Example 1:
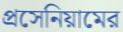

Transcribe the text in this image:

প্রসেনিয়ামের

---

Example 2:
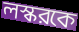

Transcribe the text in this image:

লস্করকে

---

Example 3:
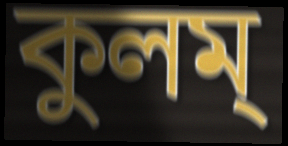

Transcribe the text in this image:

কুলম্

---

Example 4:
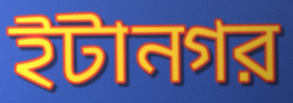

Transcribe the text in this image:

ইটানগর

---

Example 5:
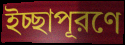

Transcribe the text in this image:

ইচ্ছাপূরণে